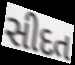
સીદત